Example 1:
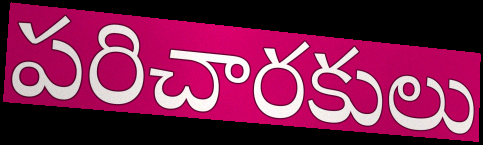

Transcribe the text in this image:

పరిచారకులు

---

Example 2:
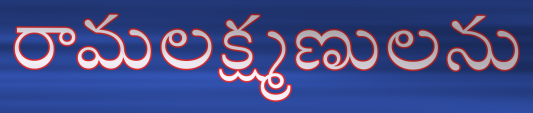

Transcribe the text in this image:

రామలక్ష్మణులను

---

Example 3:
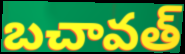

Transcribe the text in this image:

బచావత్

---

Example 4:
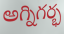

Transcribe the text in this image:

అగ్నిగర్భ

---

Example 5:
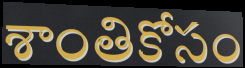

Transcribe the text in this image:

శాంతికోసం